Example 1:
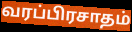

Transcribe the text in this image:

வரப்பிரசாதம்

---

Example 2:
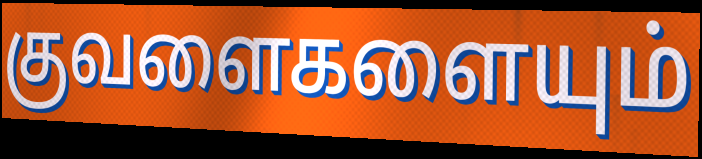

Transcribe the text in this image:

குவளைகளையும்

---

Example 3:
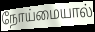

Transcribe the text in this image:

நோய்மையால்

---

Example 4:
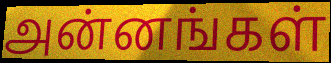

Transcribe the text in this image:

அன்னங்கள்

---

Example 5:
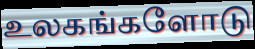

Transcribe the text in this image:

உலகங்களோடு